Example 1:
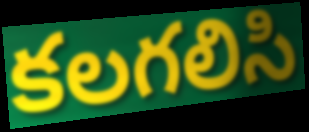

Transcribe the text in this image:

కలగలిసి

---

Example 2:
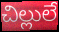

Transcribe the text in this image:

చిల్లులే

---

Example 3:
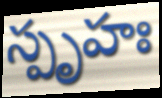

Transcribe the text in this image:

స్పృహః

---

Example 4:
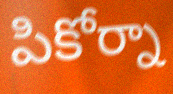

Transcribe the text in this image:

పికోర్నా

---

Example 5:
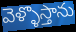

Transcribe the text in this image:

వెళ్ళొస్తాను